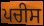
ਪਚੀਸ